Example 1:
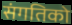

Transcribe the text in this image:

संगतिको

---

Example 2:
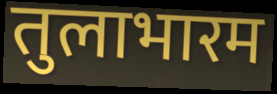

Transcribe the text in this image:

तुलाभारम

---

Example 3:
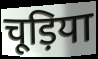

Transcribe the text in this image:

चूड़िया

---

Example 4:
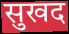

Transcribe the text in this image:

सुखद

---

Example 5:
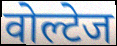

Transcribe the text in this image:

वोल्टेज